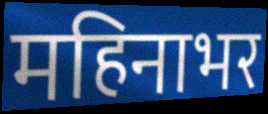
महिनाभर